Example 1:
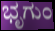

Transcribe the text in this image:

ಭೃಗುಂ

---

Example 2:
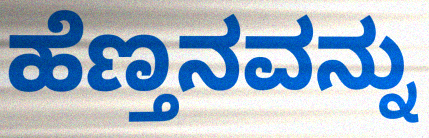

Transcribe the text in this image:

ಹೆಣ್ತನವನ್ನು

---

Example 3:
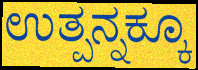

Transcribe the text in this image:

ಉತ್ಪನ್ನಕ್ಕೂ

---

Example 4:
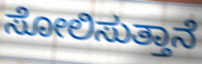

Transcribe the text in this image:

ಸೋಲಿಸುತ್ತಾನೆ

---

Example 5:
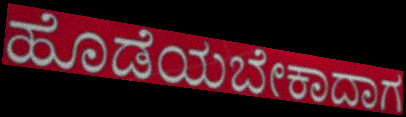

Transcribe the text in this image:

ಹೊಡೆಯಬೇಕಾದಾಗ